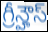
గ్రీన్హౌస్